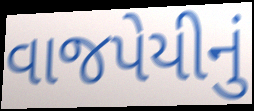
વાજપેયીનું